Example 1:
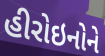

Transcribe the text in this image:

હીરોઇનોને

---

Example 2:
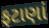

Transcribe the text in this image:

ફટાણાં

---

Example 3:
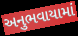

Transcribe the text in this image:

અનુભવાયામાં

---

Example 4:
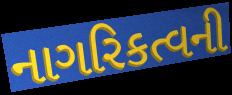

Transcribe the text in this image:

નાગરિકત્વની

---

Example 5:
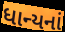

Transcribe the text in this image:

ધાન્યનાં